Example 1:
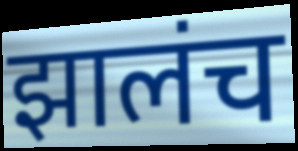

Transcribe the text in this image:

झालंच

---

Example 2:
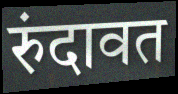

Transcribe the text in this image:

रुंदावत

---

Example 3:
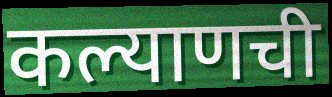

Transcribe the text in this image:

कल्याणची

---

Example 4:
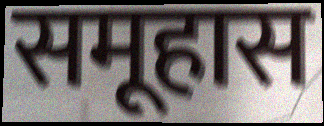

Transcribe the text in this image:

समूहास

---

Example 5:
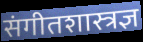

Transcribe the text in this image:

संगीतशास्त्रज्ञ